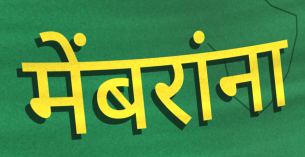
मेंबरांना